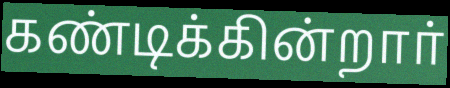
கண்டிக்கின்றார்